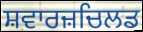
ਸ਼ਵਾਰਜ਼ਚਿਲਡ